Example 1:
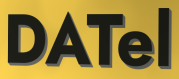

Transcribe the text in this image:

DATel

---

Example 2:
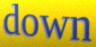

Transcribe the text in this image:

down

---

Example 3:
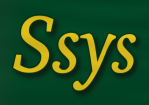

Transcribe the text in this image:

Ssys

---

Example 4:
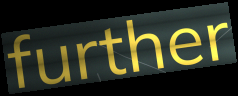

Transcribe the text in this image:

further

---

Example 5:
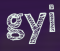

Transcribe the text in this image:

gyi